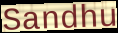
Sandhu